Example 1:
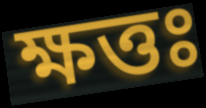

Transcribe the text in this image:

ক্ষত্তঃ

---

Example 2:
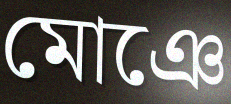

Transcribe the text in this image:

মোঞে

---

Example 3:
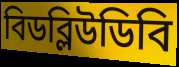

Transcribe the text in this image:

বিডব্লিউডিবি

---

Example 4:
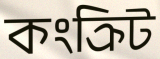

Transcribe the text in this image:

কংক্রিট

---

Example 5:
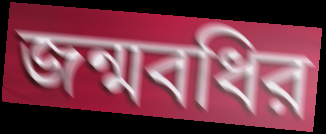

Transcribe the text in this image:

জন্মবধির